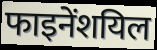
फाइनेंशयिल